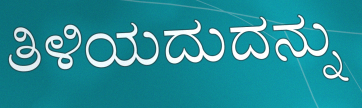
ತಿಳಿಯದುದನ್ನು